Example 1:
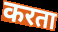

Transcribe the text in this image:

करता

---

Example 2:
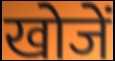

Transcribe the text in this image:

खोजें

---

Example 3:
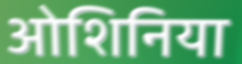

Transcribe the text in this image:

ओशिनिया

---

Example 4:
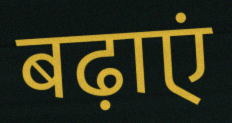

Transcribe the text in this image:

बढ़ाएं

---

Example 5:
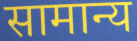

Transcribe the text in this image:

सामान्य